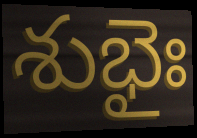
శుభైః